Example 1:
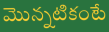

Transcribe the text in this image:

మొన్నటికంటే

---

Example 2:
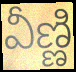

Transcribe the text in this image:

వీణ్ణి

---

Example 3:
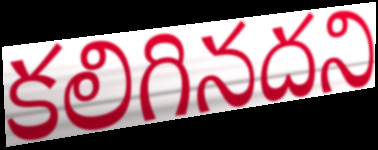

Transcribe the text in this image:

కలిగినదని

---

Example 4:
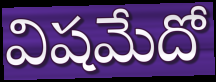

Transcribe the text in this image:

విషమేదో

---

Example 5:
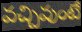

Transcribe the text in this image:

వచ్చివుంటే